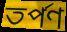
তর্পণ